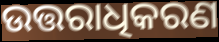
ଉତ୍ତରାଧିକରଣ